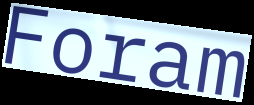
Foram